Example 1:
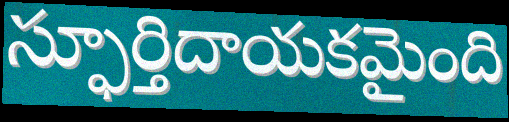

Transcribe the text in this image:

స్ఫూర్తిదాయకమైంది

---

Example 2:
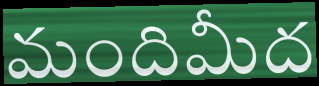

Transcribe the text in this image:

మందిమీద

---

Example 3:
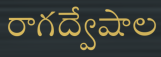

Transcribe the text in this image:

రాగద్వేషాల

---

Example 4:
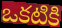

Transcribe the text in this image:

ఒకటికి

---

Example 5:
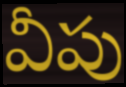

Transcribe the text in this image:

వీపు